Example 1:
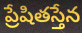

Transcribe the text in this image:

ప్రేషితస్తేన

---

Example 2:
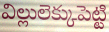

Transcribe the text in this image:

విల్లులెక్కుపెట్టి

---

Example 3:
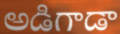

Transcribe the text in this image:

అడిగాడా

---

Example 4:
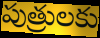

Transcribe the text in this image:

పుత్రులకు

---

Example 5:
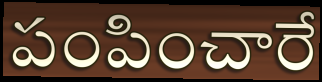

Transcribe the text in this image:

పంపించారే